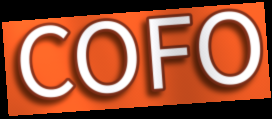
COFO